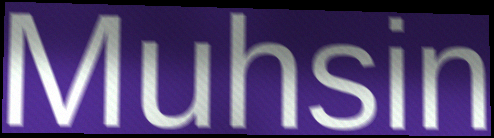
Muhsin